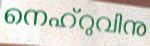
നെഹ്റുവിനു